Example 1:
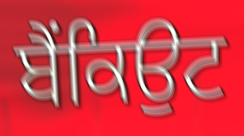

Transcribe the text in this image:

ਬੈਂਕਿਉਟ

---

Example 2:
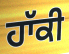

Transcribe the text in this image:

ਹਾੱਕੀ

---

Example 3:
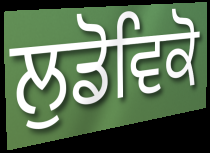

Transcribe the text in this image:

ਲੁਡੋਵਿਕੋ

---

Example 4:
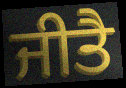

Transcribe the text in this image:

ਜੀਤੈ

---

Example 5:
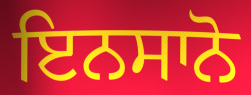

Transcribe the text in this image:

ਇਨਸਾਨੋ